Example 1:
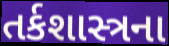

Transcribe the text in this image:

તર્કશાસ્ત્રના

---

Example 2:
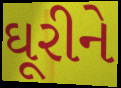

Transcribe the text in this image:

ઘૂરીને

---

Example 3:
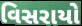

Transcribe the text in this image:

વિસરાયો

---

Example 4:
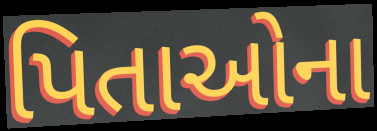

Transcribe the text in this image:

પિતાઓના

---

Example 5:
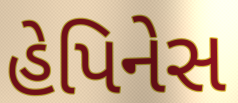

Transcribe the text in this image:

હેપિનેસ